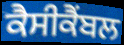
ਕੈਸੀਕੈਂਬਲ